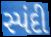
સ્પંદી